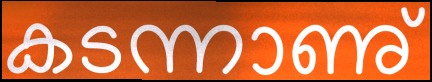
കടന്നാണു്